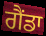
ਗੈਂਡਾ